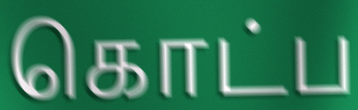
கொட்ப